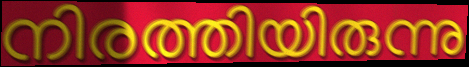
നിരത്തിയിരുന്നു